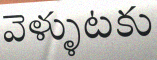
వెళ్ళుటకు